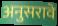
अनुसरावे